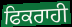
ਫਿਕਰਾਹੀ